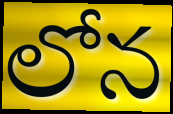
లోన